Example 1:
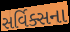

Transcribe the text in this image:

સર્વિક્સના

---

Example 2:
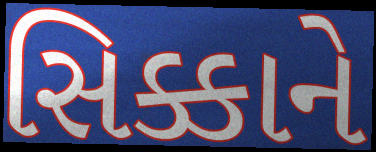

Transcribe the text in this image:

સિક્કાને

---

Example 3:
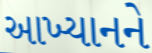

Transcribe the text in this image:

આખ્યાનને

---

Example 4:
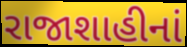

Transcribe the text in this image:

રાજાશાહીનાં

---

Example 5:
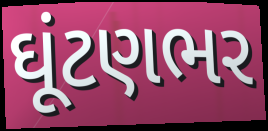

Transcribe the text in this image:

ઘૂંટણભર